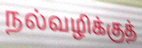
நல்வழிக்குத்